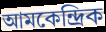
আমকেন্দ্রিক